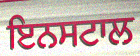
ਇਨਸਟਾਲ